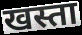
खस्ता